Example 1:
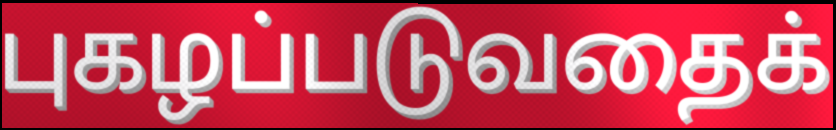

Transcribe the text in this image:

புகழப்படுவதைக்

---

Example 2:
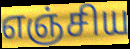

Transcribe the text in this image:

எஞ்சிய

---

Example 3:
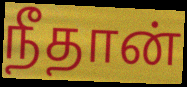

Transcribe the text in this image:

நீதான்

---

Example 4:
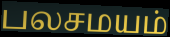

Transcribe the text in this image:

பலசமயம்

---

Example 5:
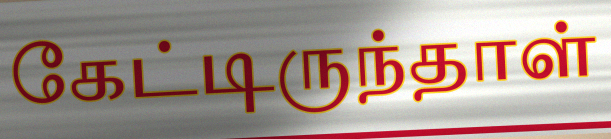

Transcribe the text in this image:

கேட்டிருந்தாள்